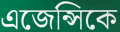
এজেন্সিকে